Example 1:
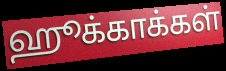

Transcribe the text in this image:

ஹூக்காக்கள்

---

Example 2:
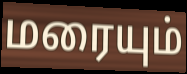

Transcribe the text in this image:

மரையும்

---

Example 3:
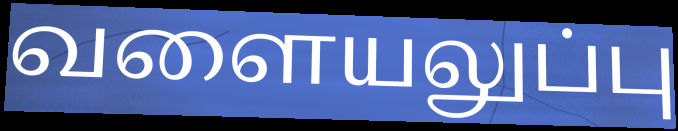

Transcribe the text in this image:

வளையலுப்பு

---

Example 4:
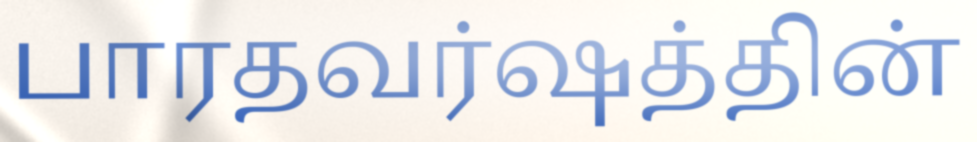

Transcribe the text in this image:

பாரதவர்ஷத்தின்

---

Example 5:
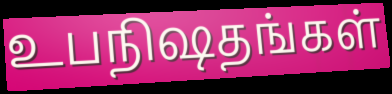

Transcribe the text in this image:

உபநிஷதங்கள்